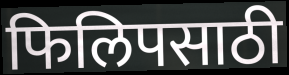
फिलिपसाठी